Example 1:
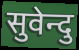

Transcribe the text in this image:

सुवेन्दु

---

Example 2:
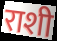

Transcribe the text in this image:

राशी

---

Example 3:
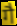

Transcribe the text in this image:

गै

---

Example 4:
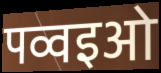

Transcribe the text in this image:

पव्वइओ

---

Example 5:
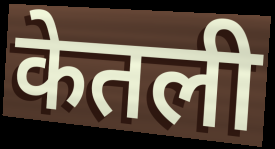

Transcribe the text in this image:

केतली